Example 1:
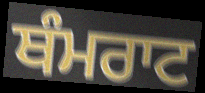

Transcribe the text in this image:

ਥੰਮਰਾਟ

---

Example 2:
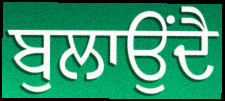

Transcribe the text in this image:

ਬੁਲਾਉਂਦੈ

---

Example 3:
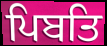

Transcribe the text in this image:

ਪਿਬਤਿ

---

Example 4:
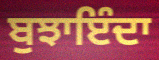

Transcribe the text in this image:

ਬੁਝਾਇੰਦਾ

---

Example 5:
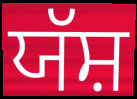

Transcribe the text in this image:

ਯੱਸ਼